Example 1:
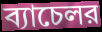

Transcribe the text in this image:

ব্যাচেলর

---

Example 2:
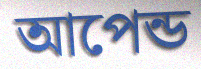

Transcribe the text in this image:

আপেন্ড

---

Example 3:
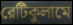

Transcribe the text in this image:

রেটিকুলামে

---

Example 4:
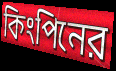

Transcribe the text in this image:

কিংপিনের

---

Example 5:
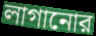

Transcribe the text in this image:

লাগানোর